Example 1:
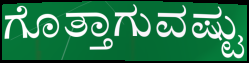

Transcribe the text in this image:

ಗೊತ್ತಾಗುವಷ್ಟು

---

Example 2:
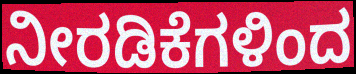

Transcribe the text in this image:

ನೀರಡಿಕೆಗಳಿಂದ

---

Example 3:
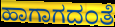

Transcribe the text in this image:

ಹಾಗಾಗದಂತೆ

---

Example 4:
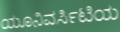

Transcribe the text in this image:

ಯೂನಿವರ್ಸಿಟಿಯ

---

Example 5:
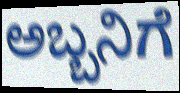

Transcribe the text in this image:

ಅಬ್ಬನಿಗೆ